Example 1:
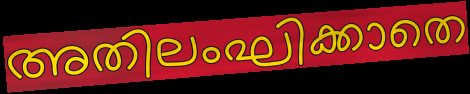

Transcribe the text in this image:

അതിലംഘിക്കാതെ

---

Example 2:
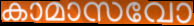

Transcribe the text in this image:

കാമാസവോ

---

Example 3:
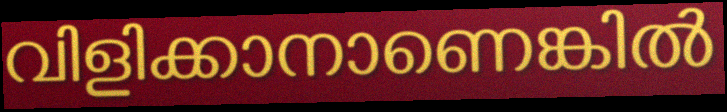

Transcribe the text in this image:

വിളിക്കാനാണെങ്കിൽ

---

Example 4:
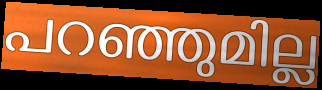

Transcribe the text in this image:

പറഞ്ഞുമില്ല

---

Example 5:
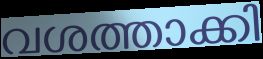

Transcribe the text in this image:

വശത്താക്കി